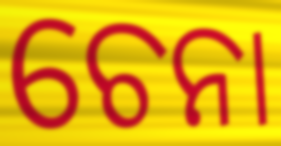
ଚେନା